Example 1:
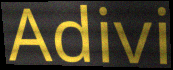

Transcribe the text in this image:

Adivi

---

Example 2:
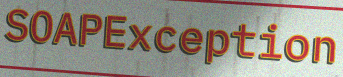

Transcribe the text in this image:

SOAPException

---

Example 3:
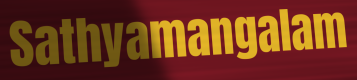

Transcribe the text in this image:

Sathyamangalam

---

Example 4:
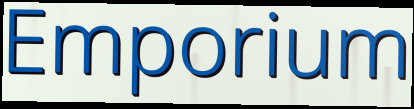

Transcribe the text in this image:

Emporium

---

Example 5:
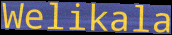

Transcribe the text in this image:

Welikala